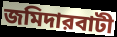
জমিদারবাটী